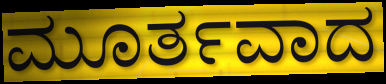
ಮೂರ್ತವಾದ